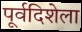
पूर्वदिशेला